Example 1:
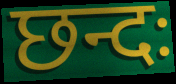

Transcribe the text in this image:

छन्दः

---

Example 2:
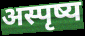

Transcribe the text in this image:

अस्पृष्य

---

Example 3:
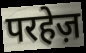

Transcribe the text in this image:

परहेज़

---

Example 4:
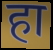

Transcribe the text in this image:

हा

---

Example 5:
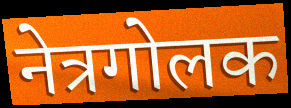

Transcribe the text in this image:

नेत्रगोलक